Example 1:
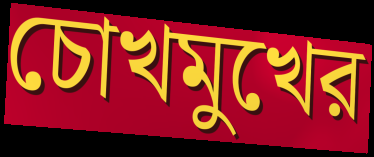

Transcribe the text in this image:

চোখমুখের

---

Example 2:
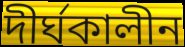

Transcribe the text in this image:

দীর্ঘকালীন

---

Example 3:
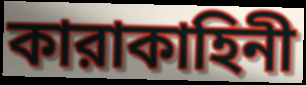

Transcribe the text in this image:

কারাকাহিনী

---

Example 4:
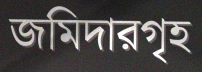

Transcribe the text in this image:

জমিদারগৃহ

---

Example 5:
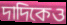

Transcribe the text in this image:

দাদিকেও